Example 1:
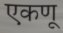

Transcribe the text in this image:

एकणू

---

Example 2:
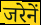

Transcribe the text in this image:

जरेनें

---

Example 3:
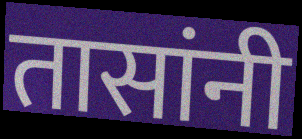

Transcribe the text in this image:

तासांनी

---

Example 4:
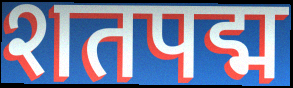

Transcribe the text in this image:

शतपद्म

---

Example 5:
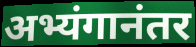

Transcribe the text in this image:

अभ्यंगानंतर